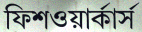
ফিশওয়ার্কার্স